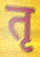
तृ